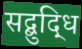
सद्बुद्धि